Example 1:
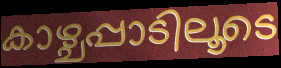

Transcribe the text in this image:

കാഴ്ചപ്പാടിലൂടെ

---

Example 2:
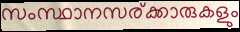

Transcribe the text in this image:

സംസ്ഥാനസര്ക്കാരുകളും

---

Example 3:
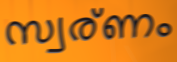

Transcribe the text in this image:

സ്വര്ണം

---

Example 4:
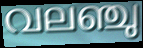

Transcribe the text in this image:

വലഞ്ചു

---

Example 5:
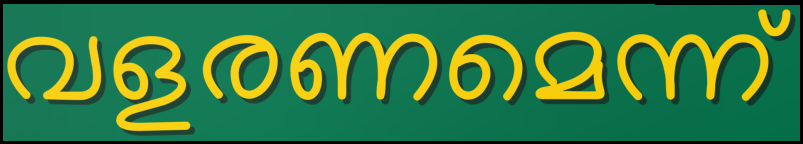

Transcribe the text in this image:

വളരണമെന്ന്